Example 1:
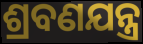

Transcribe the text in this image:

ଶ୍ରବଣଯନ୍ତ୍ର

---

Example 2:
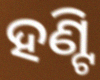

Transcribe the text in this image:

ହଣ୍ଟି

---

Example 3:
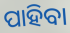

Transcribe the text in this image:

ପାହିବା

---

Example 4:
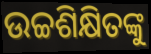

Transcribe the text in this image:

ଉଚ୍ଚଶିକ୍ଷିତଙ୍କୁ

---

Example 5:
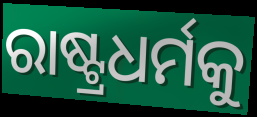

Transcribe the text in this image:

ରାଷ୍ଟ୍ରଧର୍ମକୁ